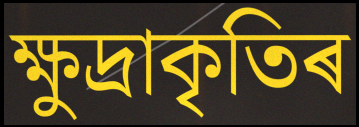
ক্ষুদ্ৰাকৃতিৰ